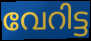
വേറിട്ട